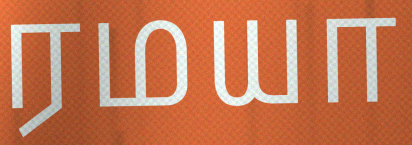
ரமயா